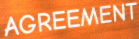
AGREEMENT